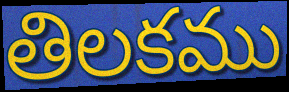
తిలకము